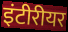
इंटीरीयर